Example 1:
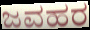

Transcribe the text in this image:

ಜವಹರ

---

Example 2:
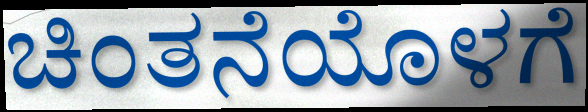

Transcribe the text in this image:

ಚಿಂತನೆಯೊಳಗೆ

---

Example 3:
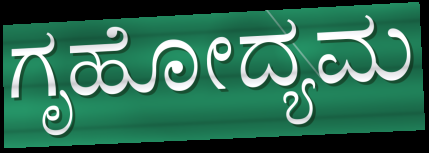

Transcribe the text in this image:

ಗೃಹೋದ್ಯಮ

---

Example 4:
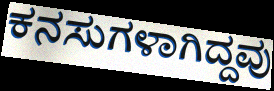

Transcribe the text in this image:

ಕನಸುಗಳಾಗಿದ್ದವು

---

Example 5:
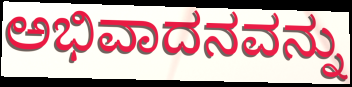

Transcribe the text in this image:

ಅಭಿವಾದನವನ್ನು